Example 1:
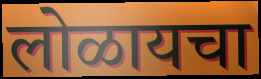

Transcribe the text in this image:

लोळायचा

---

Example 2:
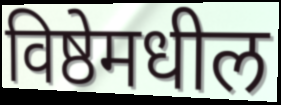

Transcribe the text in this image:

विष्ठेमधील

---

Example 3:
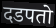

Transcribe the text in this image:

दडपतो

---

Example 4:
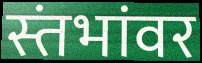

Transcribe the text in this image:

स्तंभांवर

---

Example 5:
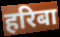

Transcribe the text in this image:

हरिबा